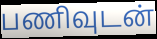
பணிவுடன்